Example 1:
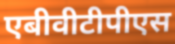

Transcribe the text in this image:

एबीवीटीपीएस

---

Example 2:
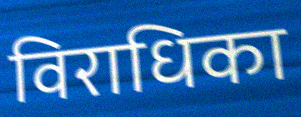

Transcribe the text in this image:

विराधिका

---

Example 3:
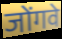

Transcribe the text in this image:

जोंगवे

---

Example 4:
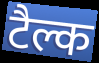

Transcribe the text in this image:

टैल्क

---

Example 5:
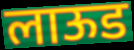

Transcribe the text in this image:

लाऊड